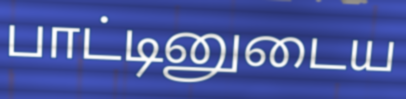
பாட்டினுடைய